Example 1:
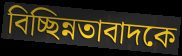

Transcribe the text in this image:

বিচ্ছিন্নতাবাদকে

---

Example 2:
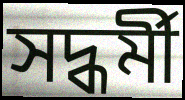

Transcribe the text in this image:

সদ্ধর্মী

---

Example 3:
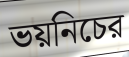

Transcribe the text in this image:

ভয়নিচের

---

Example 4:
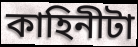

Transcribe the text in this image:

কাহিনীটা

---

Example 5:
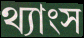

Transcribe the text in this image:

থ্যাংস